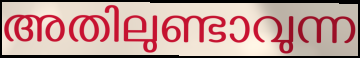
അതിലുണ്ടാവുന്ന